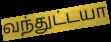
வந்துட்டயா